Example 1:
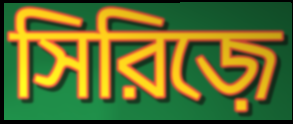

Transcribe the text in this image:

সিরিজ়ে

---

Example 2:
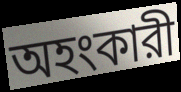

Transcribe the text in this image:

অহংকারী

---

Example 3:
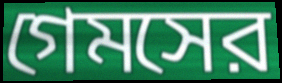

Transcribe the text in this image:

গেমসের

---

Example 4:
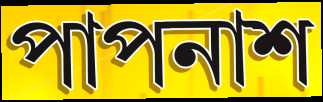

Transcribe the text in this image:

পাপনাশ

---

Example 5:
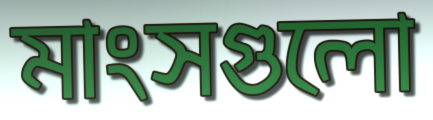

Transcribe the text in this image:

মাংসগুলো